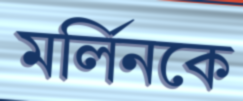
মর্লিনকে